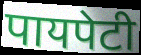
पायपेटी